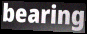
bearing